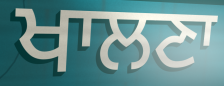
ਖਾਲਣਾ